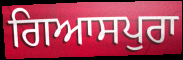
ਗਿਆਸਪੁਰਾ